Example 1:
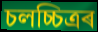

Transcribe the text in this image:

চলচ্চিত্ৰৰ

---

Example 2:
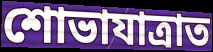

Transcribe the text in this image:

শোভাযাত্ৰাত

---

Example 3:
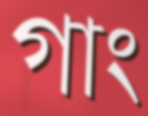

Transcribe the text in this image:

গাং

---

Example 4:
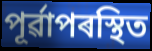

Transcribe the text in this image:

পূৰ্ৱাপৰস্থিত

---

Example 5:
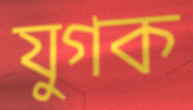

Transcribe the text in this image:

যুগক